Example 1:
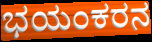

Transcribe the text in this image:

ಭಯಂಕರನ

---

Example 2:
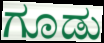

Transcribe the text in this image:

ಗೂಡು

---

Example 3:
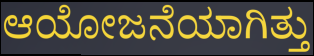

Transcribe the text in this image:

ಆಯೋಜನೆಯಾಗಿತ್ತು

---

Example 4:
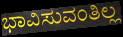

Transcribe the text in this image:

ಭಾವಿಸುವಂತಿಲ್ಲ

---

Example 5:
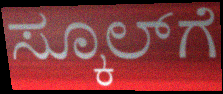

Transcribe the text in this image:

ಸ್ಕೂಲ್‌ಗೆ